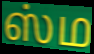
ஸ்ம